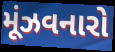
મૂંઝવનારો